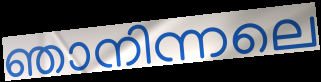
ഞാനിന്നലെ